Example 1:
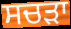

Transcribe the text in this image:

ਸਚੜਾ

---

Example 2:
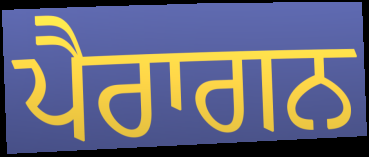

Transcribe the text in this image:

ਪੈਰਾਗਨ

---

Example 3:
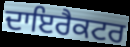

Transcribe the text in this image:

ਦਾਇਰੈਕਟਰ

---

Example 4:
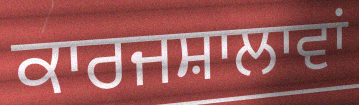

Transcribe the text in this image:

ਕਾਰਜਸ਼ਾਲਾਵਾਂ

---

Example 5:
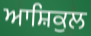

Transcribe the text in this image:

ਆਸ਼ਿਕੁਲ